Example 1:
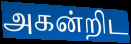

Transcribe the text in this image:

அகன்றிட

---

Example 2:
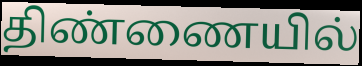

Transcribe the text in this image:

திண்ணையில்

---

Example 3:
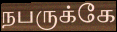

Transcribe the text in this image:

நபருக்கே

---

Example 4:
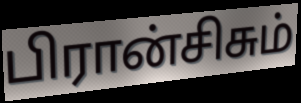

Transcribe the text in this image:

பிரான்சிசும்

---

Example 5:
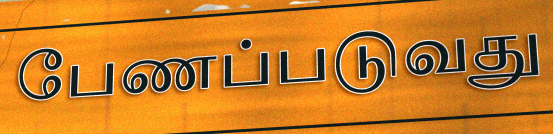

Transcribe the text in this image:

பேணப்படுவது